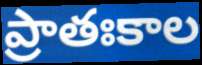
ప్రాతఃకాల